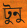
টুনু